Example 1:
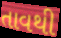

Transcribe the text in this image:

તાવથી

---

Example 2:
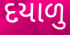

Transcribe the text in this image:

દયાળુ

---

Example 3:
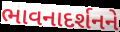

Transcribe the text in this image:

ભાવનાદર્શનને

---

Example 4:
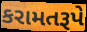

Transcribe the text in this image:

કરામતરૂપે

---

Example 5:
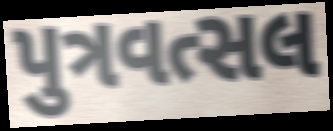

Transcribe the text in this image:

પુત્રવત્સલ